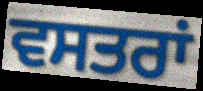
ਵਸਤਰਾਂ